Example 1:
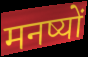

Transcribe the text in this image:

मनष्यों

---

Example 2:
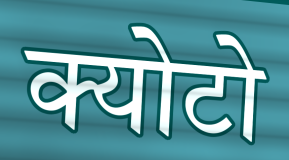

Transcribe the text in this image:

क्‍योटो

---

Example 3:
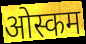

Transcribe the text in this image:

ओस्कम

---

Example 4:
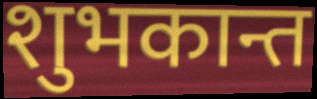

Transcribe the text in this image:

शुभकान्त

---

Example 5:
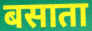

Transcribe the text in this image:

बसाता